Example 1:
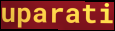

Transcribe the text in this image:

uparati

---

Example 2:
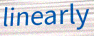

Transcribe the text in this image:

linearly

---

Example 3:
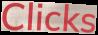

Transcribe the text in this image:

Clicks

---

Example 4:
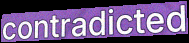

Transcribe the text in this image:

contradicted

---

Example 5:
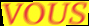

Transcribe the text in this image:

VOUS